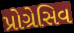
પ્રોગ્રેસિવ